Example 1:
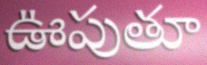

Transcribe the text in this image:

ఊపుతూ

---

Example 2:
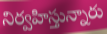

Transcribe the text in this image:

నిర్వహిస్తున్నారు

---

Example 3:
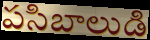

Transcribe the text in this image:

పసిబాలుడి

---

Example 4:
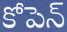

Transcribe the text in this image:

కోపెన్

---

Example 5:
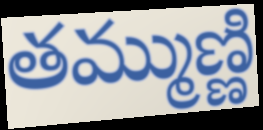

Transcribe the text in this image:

తమ్ముణ్ణి